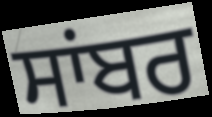
ਸਾਂਬਰ